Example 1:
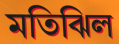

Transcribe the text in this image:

মতিঝিল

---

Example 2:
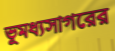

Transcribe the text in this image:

ভূমধ্যসাগরের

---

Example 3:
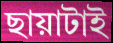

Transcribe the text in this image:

ছায়াটাই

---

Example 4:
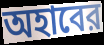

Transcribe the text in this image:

অহাবের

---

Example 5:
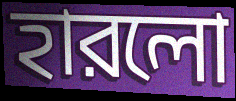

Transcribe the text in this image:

হারলো